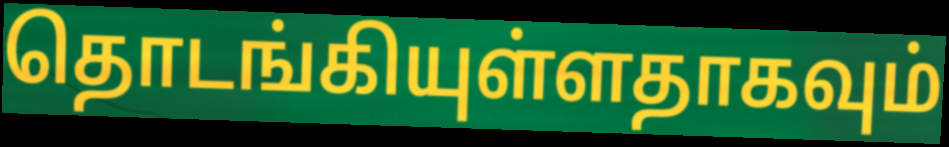
தொடங்கியுள்ளதாகவும்